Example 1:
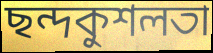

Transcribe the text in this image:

ছন্দকুশলতা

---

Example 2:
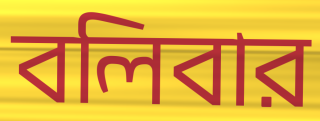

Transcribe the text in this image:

বলিবার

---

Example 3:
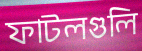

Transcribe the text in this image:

ফাটলগুলি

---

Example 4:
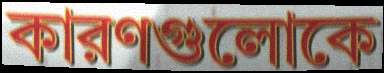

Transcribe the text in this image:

কারণগুলোকে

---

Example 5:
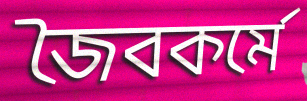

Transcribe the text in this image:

জৈবকর্মে